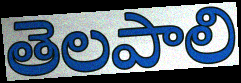
తెలపాలి